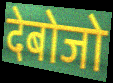
देबोजो